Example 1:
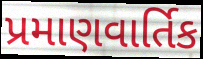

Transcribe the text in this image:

પ્રમાણવાર્તિક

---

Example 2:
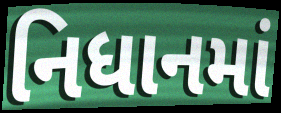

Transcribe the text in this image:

નિધાનમાં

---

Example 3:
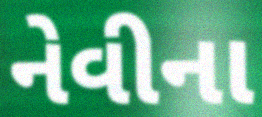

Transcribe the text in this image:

નેવીના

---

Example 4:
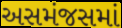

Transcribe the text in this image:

અસમંજસમાં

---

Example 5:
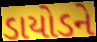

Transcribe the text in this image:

ડાયોડને